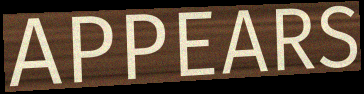
APPEARS